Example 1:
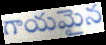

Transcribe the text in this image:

గాయమైన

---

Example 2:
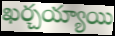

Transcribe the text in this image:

ఖర్చయ్యాయి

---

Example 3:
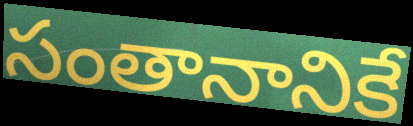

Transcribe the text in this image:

సంతానానికే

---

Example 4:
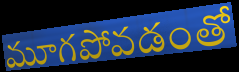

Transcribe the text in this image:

మూగపోవడంతో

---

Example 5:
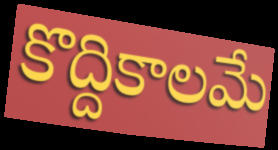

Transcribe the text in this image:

కొద్దికాలమే